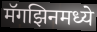
मॅगझिनमध्ये